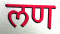
लण